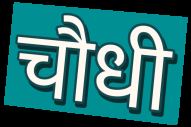
चौधी